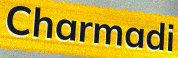
Charmadi